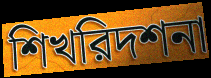
শিখরিদশনা